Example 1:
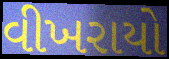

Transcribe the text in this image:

વીખરાયો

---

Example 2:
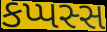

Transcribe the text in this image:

કપ્પસ્સ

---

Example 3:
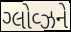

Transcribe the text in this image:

ગ્લોવ્ઝને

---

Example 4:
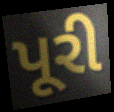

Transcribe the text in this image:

પૂરી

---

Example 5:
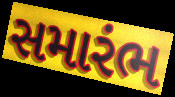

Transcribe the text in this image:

સમારંભ